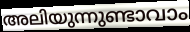
അലിയുന്നുണ്ടാവാം